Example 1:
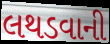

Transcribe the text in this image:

લથડવાની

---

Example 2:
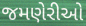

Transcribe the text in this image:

જમણેરીઓ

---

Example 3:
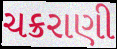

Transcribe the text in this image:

ચક્રરાણી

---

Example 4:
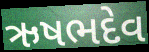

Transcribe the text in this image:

ઋષભદેવ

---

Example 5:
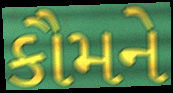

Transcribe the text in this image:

કૌમને